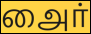
அைர்